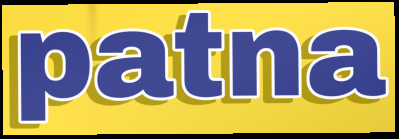
patna